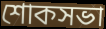
শোকসভা